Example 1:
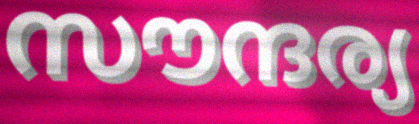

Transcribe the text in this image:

സൗന്ദര്യ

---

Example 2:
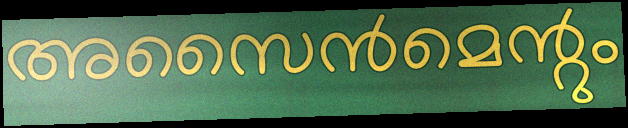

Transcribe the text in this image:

അസൈൻമെന്റും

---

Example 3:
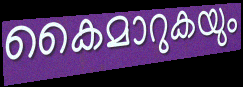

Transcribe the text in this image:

കൈമാറുകയും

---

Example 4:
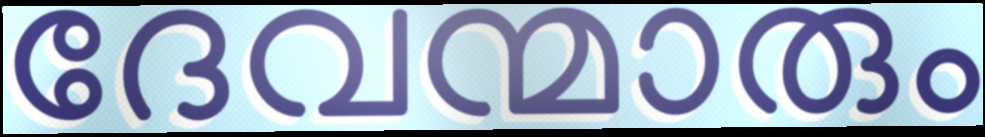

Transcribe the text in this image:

ദേവന്മാരും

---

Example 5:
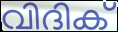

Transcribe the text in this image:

വിദിക്